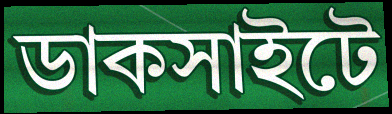
ডাকসাইটে